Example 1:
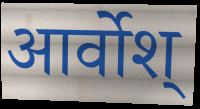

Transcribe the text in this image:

आर्वोश्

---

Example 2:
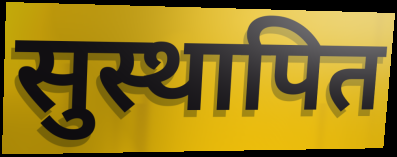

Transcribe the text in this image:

सुस्थापित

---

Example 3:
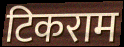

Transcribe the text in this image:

टिकराम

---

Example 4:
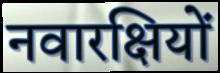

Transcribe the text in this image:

नवारक्षियों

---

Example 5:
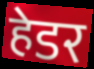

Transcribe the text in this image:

हेडर